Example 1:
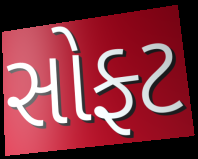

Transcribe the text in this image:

સોફ્ટ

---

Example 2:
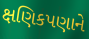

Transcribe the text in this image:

ક્ષણિકપણાને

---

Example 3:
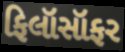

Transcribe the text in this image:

ફિલૉસૉફર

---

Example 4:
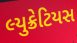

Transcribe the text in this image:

લ્યુક્રેટિયસ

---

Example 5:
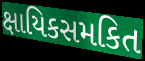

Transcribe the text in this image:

ક્ષાયિકસમકિત